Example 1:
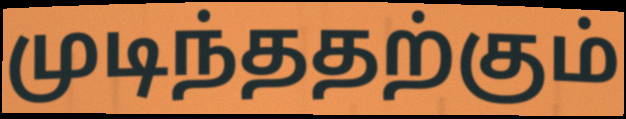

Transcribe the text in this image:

முடிந்ததற்கும்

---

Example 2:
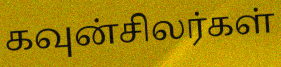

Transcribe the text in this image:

கவுன்சிலர்கள்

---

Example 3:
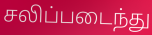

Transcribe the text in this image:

சலிப்படைந்து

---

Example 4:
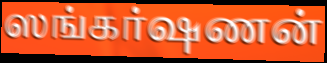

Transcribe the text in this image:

ஸங்கர்ஷணன்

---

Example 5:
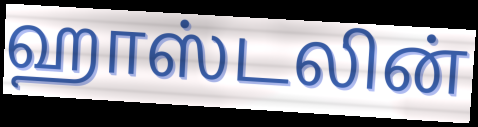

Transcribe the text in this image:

ஹாஸ்டலின்